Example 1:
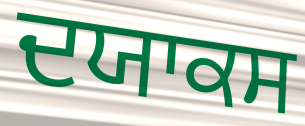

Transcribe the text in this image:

ਦਯਾਕਸ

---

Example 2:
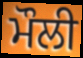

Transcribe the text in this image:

ਮੌਲੀ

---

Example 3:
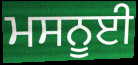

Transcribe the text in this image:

ਮਸਨੂਈ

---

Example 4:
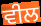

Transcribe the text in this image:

ਵੀਲ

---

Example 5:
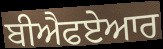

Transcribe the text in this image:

ਬੀਐਫਏਆਰ